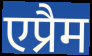
एप्रैम